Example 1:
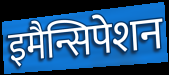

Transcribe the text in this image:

इमैन्सिपेशन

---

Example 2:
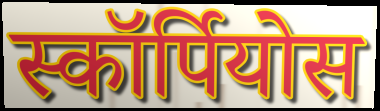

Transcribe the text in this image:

स्कॉर्पियोस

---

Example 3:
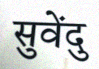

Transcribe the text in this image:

सुवेंदु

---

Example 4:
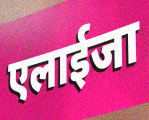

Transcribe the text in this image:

एलाईजा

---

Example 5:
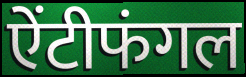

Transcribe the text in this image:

ऐंटीफंगल